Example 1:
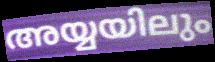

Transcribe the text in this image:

അയ്യയിലും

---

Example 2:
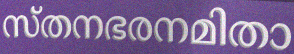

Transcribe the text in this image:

സ്തനഭരനമിതാ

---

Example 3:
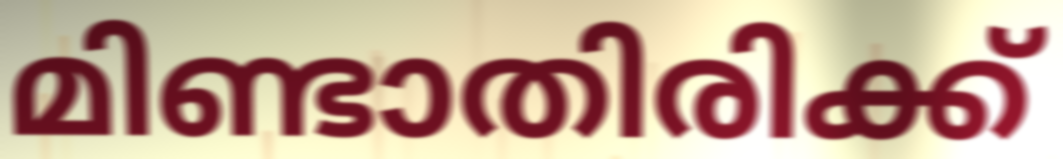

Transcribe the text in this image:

മിണ്ടാതിരിക്ക്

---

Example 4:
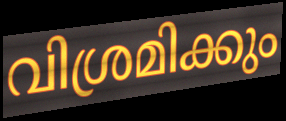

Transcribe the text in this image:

വിശ്രമിക്കും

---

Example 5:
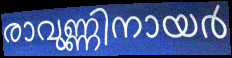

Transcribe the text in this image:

രാവുണ്ണിനായർ